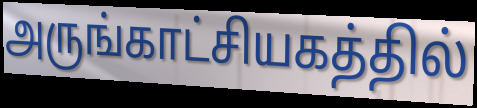
அருங்காட்சியகத்தில்